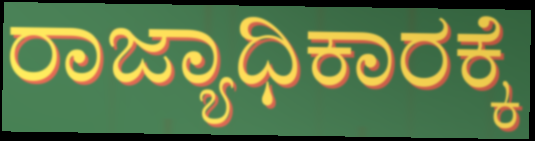
ರಾಜ್ಯಾಧಿಕಾರಕ್ಕೆ